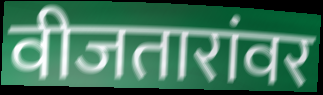
वीजतारांवर